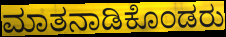
ಮಾತನಾಡಿಕೊಂಡರು